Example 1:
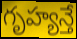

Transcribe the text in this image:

గృహ్యన్తే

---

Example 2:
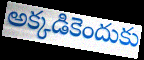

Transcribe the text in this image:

అక్కడికెందుకు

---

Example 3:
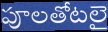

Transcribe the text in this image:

పూలతోటలై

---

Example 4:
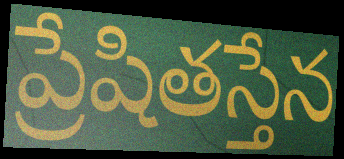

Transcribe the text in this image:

ప్రేషితస్తేన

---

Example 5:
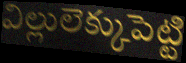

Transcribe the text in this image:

విల్లులెక్కుపెట్టి